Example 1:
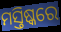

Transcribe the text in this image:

ମସ୍ତିଷ୍କରେ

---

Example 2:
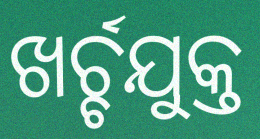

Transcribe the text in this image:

ଖର୍ଚ୍ଚଯୁକ୍ତ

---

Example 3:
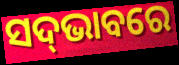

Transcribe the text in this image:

ସଦ୍‌ଭାବରେ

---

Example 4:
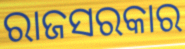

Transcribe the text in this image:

ରାଜସରକାର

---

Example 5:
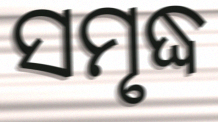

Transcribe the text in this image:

ସମୃଦ୍ଧ